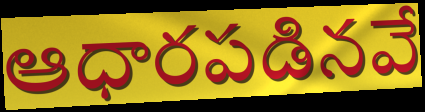
ఆధారపడినవే